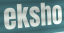
eksho